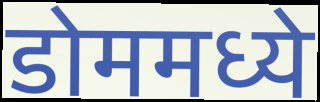
डोममध्ये